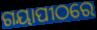
ଗୟାପୀଠରେ